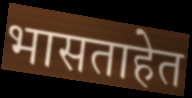
भासताहेत